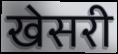
खेसरी